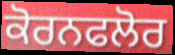
ਕੋਰਨਫਲੋਰ